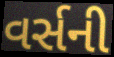
વર્સની